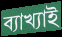
ব্যাখ্যাই